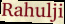
Rahulji